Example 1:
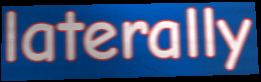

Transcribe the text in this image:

laterally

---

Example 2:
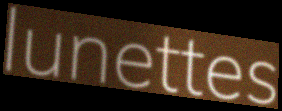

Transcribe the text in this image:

lunettes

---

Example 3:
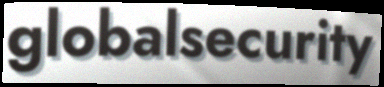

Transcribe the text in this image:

globalsecurity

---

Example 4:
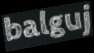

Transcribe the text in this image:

balguj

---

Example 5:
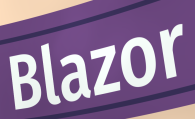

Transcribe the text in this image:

Blazor